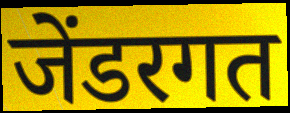
जेंडरगत